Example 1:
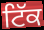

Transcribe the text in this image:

ਟਿੱਕ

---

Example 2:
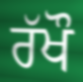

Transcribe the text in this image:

ਰੱਖੌ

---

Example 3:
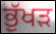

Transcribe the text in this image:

ਭੁੱਖੜ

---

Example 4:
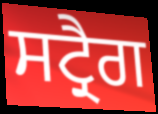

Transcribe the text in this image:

ਸਟ੍ਰੈਗ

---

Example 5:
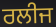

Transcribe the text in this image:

ਰਲੀਜ